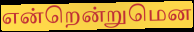
என்றென்றுமென